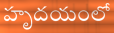
హృదయంలో